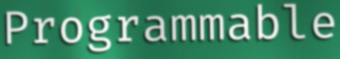
Programmable